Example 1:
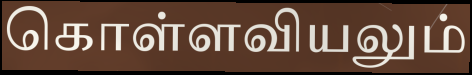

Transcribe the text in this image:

கொள்ளவியலும்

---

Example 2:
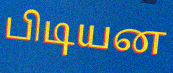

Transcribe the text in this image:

பிடியன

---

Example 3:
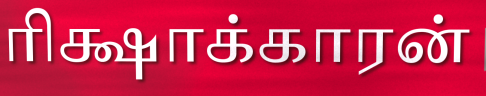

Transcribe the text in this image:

ரிக்ஷாக்காரன்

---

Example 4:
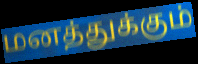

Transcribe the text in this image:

மனத்துக்கும்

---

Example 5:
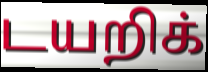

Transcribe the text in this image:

டயறிக்